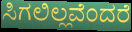
ಸಿಗಲಿಲ್ಲವೆಂದರೆ